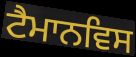
ਟੈਮਾਨਵਿਸ